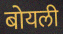
बोयली